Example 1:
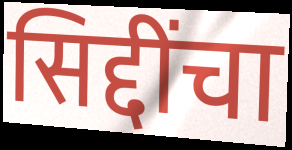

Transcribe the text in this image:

सिद्दींचा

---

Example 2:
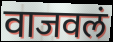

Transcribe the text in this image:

वाजवलं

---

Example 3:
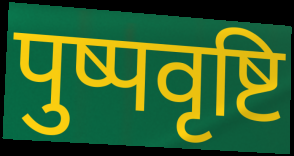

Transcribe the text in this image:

पुष्पवृष्टि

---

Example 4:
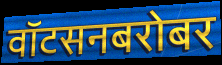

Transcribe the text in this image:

वॉटसनबरोबर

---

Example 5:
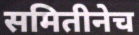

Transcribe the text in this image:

समितीनेच